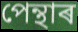
পেন্থাৰ